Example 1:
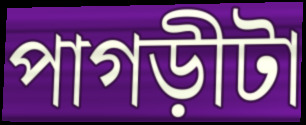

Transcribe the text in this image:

পাগড়ীটা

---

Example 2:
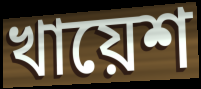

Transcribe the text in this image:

খায়েশ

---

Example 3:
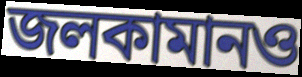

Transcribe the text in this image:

জলকামানও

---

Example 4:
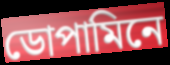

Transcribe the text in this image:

ডোপামিনে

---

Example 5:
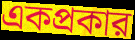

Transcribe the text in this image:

একপ্রকার